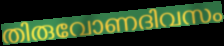
തിരുവോണദിവസം